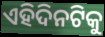
ଏହିଦିନଟିକୁ